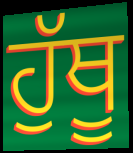
ਹੁੱਥੂ